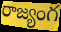
రాజ్యంగ